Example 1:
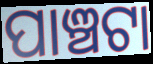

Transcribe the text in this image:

ପାଞ୍ଚଟା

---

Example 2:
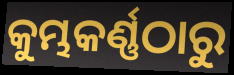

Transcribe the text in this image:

କୁମ୍ଭକର୍ଣ୍ଣଠାରୁ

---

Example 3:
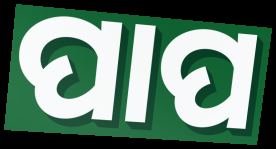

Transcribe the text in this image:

ପାପ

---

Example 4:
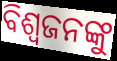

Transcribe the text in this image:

ବିଶ୍ୱଜନଙ୍କୁ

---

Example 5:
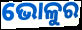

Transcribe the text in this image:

ଭୋଳୁର